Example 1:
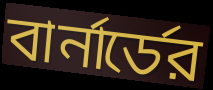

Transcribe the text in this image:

বার্নার্ডের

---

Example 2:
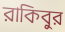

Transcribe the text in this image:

রাকিবুর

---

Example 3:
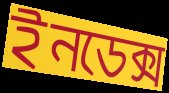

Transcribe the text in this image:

ইনডেক্স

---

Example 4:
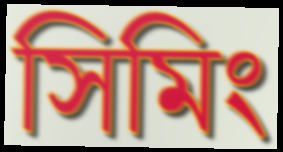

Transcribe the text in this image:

সিমিং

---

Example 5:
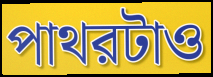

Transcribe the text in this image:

পাথরটাও